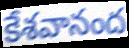
కేశవానంద